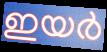
ഇയർ